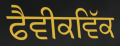
ਫੈਵੀਕਵਿੱਕ